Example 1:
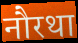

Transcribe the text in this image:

नौरथा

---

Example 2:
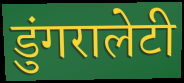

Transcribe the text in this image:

डुंगरालेटी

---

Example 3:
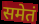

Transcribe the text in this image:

समेतं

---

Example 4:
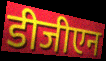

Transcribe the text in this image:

डीजीएन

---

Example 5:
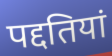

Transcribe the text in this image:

पद्दतियां